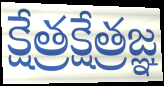
క్షేత్రక్షేత్రజ్ఞ